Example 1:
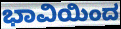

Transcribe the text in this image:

ಭಾವಿಯಿಂದ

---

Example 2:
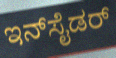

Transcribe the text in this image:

ಇನ್‌ಸೈಡರ್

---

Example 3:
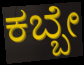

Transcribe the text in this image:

ಕಬ್ಬೇ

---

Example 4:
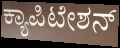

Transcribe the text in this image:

ಕ್ಯಾಪಿಟೇಶನ್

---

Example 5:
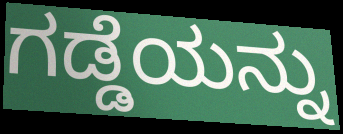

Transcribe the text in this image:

ಗಡ್ಡೆಯನ್ನು